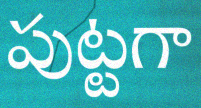
పుట్టగా